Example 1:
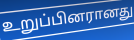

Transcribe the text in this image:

உறுப்பினரானது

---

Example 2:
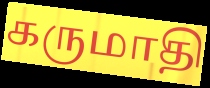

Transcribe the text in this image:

கருமாதி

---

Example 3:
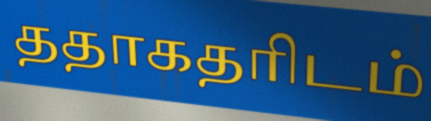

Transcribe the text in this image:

ததாகதரிடம்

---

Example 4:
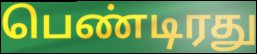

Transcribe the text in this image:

பெண்டிரது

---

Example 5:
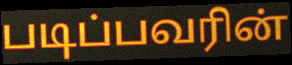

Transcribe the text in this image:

படிப்பவரின்